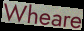
Wheare